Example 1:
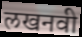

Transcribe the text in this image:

लखनवी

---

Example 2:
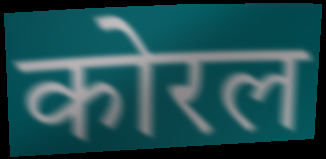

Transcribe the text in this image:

कोरल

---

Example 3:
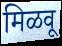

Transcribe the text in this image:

मिळवू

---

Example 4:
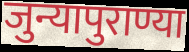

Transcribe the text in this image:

जुन्यापुराण्या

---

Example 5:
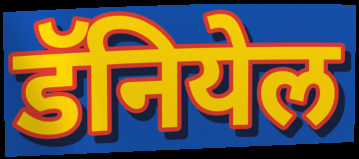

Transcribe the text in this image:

डॅनियेल